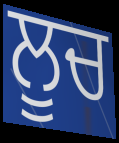
ਲੂਚ